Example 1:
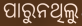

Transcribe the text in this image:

ପାରୁନଥିଲୁ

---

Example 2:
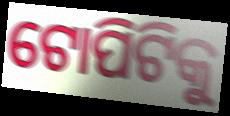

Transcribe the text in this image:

ଟୋପିଟିକୁ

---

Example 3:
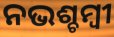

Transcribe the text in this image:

ନଭଶ୍ଚମ୍ବୀ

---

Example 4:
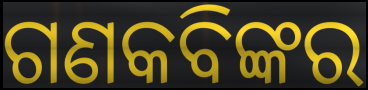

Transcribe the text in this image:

ଗଣକବିଙ୍କର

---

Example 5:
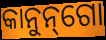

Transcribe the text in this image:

କାନୁନ୍‌ଗୋ